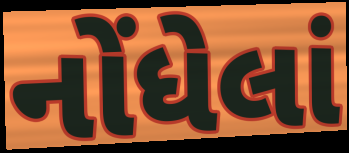
નોંધેલાં